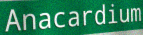
Anacardium